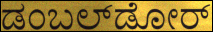
ಡಂಬಲ್‌ಡೋರ್